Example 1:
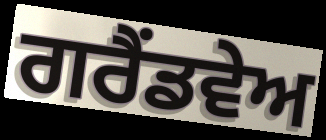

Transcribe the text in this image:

ਗਰੈਂਡਵੇਅ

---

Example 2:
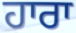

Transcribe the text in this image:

ਹਾਰਾ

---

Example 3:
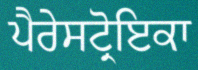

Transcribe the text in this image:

ਪੈਰੇਸਟ੍ਰੋਇਕਾ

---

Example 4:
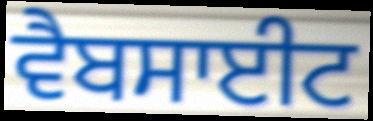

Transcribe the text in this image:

ਵੈਬਸਾਈਟ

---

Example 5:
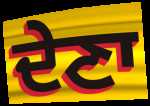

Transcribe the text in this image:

ਦੇਣਾ